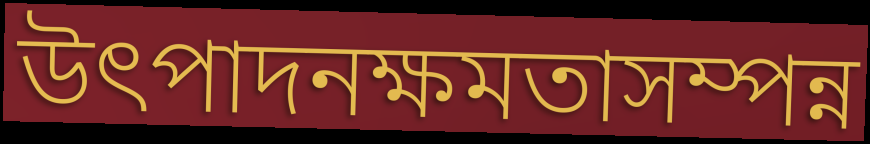
উৎপাদনক্ষমতাসম্পন্ন